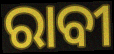
ରାବୀ